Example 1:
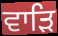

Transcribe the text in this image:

ਵਾੜਿ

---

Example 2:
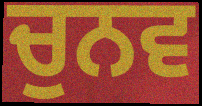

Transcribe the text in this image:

ਚੁਨਵ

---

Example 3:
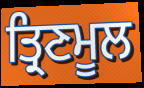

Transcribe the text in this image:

ਤ੍ਰਿਣਮੂਲ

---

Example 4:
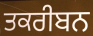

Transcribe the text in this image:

ਤਕਰੀਬਨ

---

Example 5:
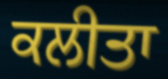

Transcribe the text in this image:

ਕਲੀਤਾ